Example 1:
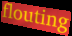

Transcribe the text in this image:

flouting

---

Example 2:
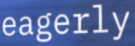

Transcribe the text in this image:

eagerly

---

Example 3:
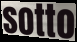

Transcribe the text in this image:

sotto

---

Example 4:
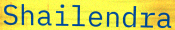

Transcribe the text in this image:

Shailendra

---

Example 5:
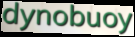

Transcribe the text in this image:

dynobuoy